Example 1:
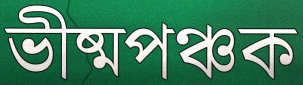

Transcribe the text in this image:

ভীষ্মপঞ্চক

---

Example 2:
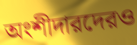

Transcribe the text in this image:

অংশীদারদেরও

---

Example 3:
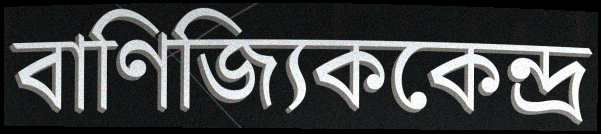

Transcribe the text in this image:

বাণিজ্যিককেন্দ্র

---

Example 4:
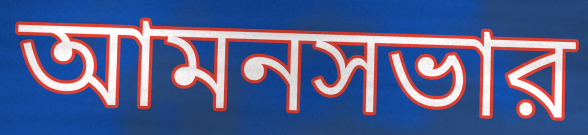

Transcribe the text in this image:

আমনসভার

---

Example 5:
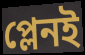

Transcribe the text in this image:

প্লেনই